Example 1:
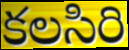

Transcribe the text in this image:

కలసిరి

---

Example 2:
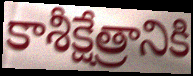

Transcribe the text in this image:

కాశీక్షేత్రానికి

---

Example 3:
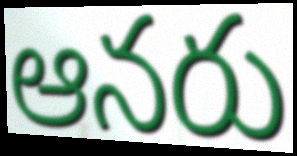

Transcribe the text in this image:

ఆనరు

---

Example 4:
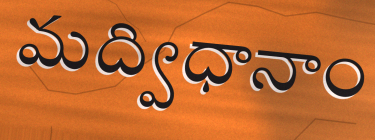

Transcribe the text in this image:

మద్విధానాం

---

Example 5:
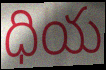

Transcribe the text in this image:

ధియ